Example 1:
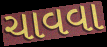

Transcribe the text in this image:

ચાવવા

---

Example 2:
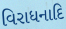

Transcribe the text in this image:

વિરાધનાદિ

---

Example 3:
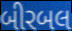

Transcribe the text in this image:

બીરબલ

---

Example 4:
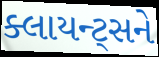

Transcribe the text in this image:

ક્લાયન્ટ્સને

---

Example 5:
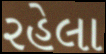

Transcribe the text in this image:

રહેલા